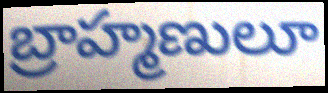
బ్రాహ్మణులూ